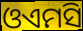
ଓଏମସି